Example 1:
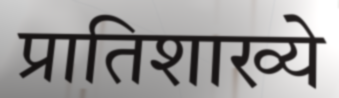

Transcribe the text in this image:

प्रातिशाख्ये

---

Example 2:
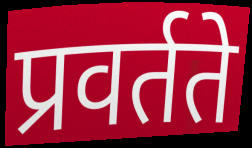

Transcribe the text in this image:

प्रवर्तते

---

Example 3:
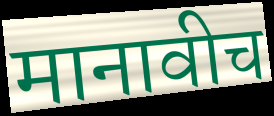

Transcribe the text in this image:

मानावीच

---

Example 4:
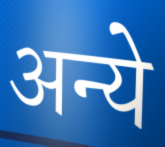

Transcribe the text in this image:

अन्ये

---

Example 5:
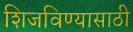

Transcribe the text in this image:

शिजविण्यासाठी